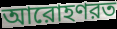
আরোহণরত